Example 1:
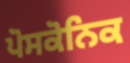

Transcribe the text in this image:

ਪੋਸਕੋਨਿਕ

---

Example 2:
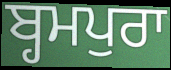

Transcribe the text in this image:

ਬ੍ਹਮਪੁਰਾ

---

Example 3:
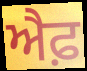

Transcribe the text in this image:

ਐਫ਼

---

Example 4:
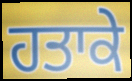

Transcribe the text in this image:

ਹਤਾਕੇ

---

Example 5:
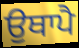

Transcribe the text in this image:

ਉਥਾਪੈ